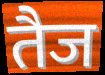
तैज